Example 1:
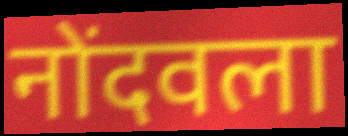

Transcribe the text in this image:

नोंदवला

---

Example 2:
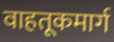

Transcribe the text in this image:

वाहतूकमार्ग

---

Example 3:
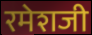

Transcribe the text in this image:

रमेशजी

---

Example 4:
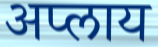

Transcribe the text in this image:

अप्लाय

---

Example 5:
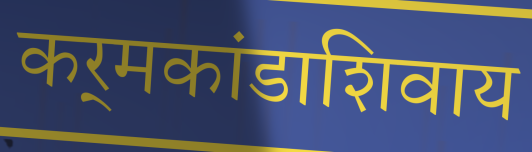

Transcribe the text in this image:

कर्मकांडाशिवाय